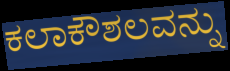
ಕಲಾಕೌಶಲವನ್ನು